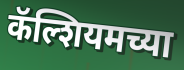
कॅल्शियमच्या